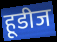
हूडीज